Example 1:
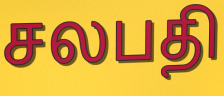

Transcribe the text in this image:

சலபதி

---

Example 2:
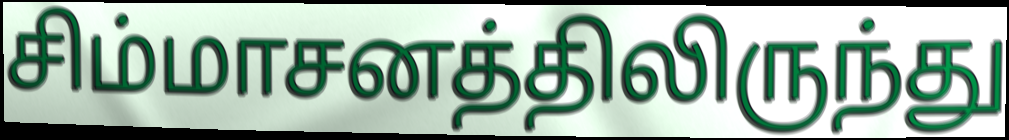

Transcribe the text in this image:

சிம்மாசனத்திலிருந்து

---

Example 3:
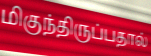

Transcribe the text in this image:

மிகுந்திருப்பதால்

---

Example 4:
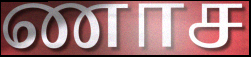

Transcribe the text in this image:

ணாச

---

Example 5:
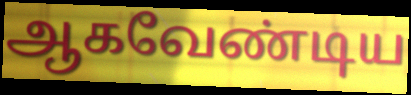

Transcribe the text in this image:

ஆகவேண்டிய